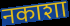
नकाशा